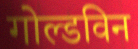
गोल्डविन